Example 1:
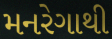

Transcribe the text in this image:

મનરેગાથી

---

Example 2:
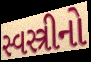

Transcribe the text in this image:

સ્વસ્ત્રીનો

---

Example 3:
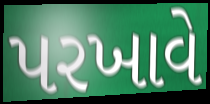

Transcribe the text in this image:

પરખાવે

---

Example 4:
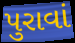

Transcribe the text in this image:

પુરાવાં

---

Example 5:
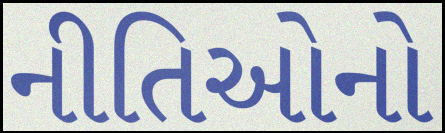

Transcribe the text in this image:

નીતિઓનો